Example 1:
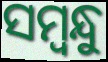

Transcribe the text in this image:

ସମ୍ବନ୍ଧୁ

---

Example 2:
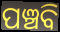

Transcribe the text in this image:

ପଞ୍ଚବି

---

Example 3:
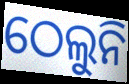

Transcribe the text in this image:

ଠେଲୁନି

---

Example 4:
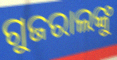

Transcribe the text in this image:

ଗୁଜରାଲଙ୍କୁ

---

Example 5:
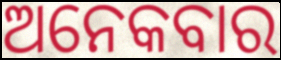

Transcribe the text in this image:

ଅନେକବାର